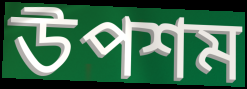
উপশম